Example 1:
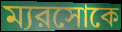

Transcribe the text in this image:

ম্যরসোকে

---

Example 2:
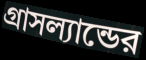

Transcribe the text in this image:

গ্রাসল্যান্ডের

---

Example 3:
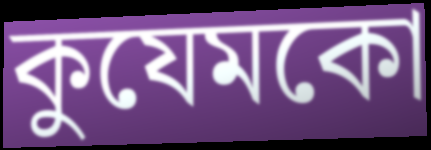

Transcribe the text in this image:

কুযেমকো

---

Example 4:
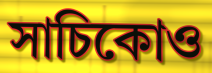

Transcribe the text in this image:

সাচিকোও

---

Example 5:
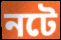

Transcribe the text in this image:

নটে